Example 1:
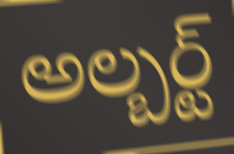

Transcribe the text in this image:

అల్బర్ట్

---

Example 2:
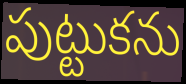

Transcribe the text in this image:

పుట్టుకను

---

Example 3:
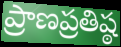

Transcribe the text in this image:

ప్రాణప్రతిష్ఠ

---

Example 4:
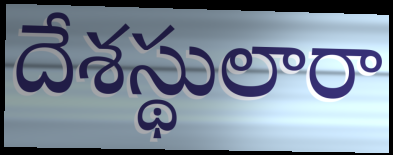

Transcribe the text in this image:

దేశస్థులారా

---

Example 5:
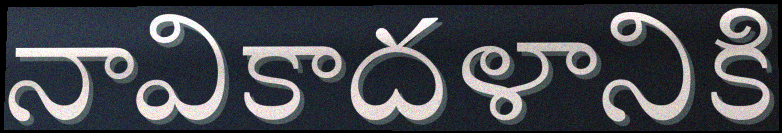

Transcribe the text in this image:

నావికాదళానికి